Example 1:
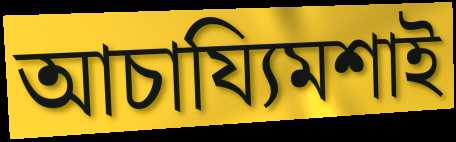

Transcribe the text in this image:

আচায্যিমশাই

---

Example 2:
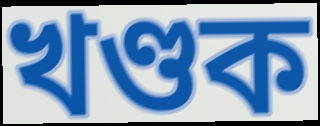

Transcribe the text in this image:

খণ্ডক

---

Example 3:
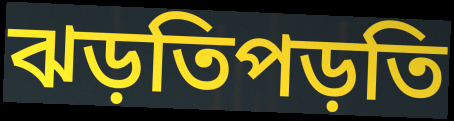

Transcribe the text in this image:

ঝড়তিপড়তি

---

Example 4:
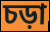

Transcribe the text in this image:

চড়া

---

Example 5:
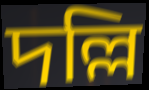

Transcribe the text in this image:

দল্লি